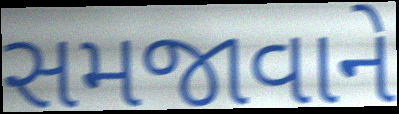
સમજાવાને